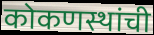
कोकणस्थांची